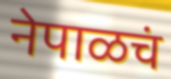
नेपाळचं